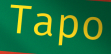
Tapo